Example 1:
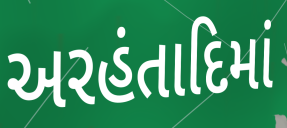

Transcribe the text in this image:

અરહંતાદિમાં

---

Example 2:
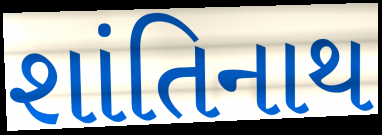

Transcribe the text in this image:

શાંતિનાથ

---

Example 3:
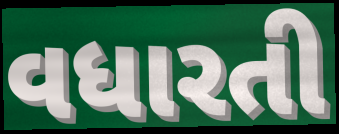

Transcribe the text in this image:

વધારતી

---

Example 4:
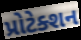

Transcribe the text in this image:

પ્રોટેક્શન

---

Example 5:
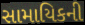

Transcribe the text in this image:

સામાયિકની